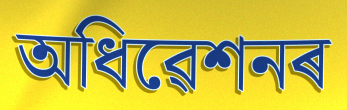
অধিৱেশনৰ